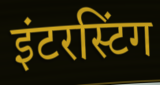
इंटरस्टिंग